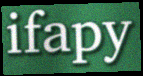
ifapy